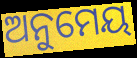
ଅନୁମେୟ